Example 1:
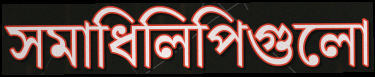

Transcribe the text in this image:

সমাধিলিপিগুলো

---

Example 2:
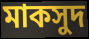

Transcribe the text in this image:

মাকসুদ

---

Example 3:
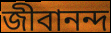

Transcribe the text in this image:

জীবানন্দ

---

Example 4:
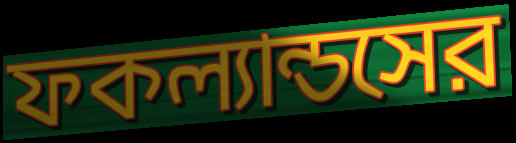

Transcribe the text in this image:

ফকল্যান্ডসের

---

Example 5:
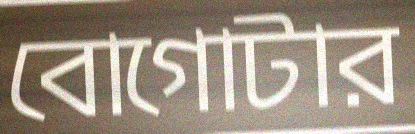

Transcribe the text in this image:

বোগোটার